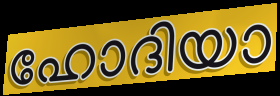
ഹോദിയാ